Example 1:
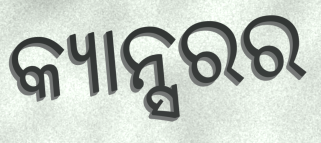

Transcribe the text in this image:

କ୍ୟାନ୍ସରର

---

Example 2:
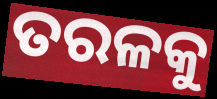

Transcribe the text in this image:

ତରଳକୁ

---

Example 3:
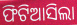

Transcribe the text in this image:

ଫିଟିଆସିଲା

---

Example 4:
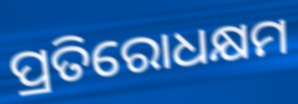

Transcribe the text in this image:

ପ୍ରତିରୋଧକ୍ଷମ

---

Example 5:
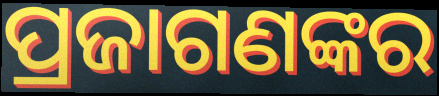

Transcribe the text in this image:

ପ୍ରଜାଗଣଙ୍କର